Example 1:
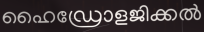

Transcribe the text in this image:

ഹൈഡ്രോളജിക്കൽ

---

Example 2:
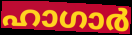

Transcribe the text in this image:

ഹാഗാർ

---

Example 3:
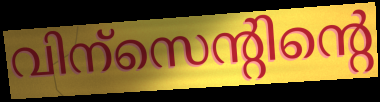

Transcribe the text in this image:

വിന്സെന്റിന്റെ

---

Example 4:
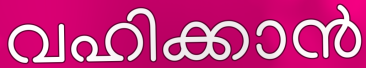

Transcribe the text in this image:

വഹിക്കാൻ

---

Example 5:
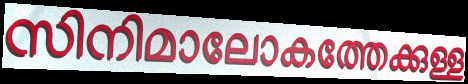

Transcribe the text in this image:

സിനിമാലോകത്തേക്കുള്ള